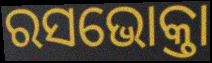
ରସଭୋକ୍ତା